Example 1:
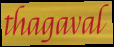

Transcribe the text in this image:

thagaval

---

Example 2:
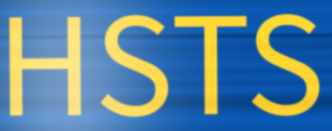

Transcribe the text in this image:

HSTS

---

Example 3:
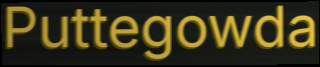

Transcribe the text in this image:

Puttegowda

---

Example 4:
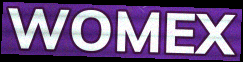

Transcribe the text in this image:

WOMEX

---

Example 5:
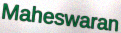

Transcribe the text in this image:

Maheswaran